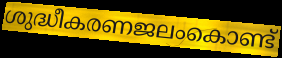
ശുദ്ധീകരണജലംകൊണ്ട്